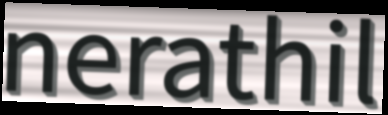
nerathil